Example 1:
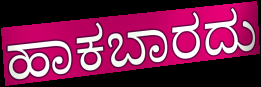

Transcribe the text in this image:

ಹಾಕಬಾರದು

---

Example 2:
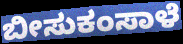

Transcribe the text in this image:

ಬೀಸುಕಂಸಾಳೆ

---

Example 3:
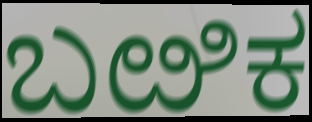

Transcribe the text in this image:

ಬೞಿಕ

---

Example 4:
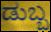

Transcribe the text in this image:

ಡುಬ್ಬ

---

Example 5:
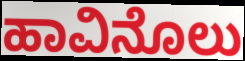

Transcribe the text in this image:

ಹಾವಿನೊಲು